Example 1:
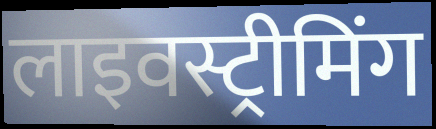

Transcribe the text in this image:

लाइवस्ट्रीमिंग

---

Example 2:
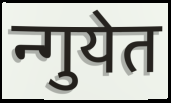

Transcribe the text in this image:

न्गुयेत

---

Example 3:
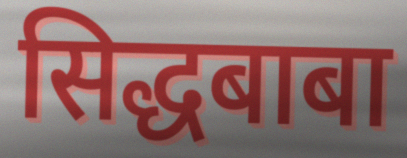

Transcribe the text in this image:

सिद्धबाबा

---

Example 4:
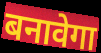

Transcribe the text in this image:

बनावेगा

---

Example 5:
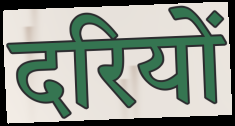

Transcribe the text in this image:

दरियों